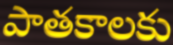
పాతకాలకు